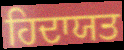
ਹਿਦਾਯਤ